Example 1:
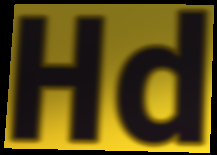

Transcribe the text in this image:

Hd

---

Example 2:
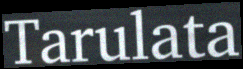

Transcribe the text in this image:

Tarulata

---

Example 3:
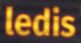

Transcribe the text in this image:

ledis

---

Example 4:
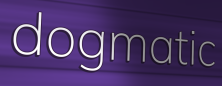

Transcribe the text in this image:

dogmatic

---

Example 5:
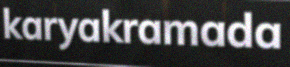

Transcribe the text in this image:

karyakramada